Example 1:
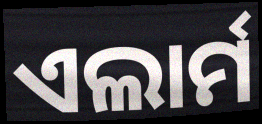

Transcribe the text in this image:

ଏଲାର୍ମ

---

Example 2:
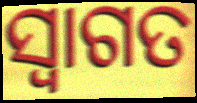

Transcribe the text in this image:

ସ୍ୱାଗତ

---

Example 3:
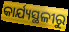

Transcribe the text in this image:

କାର୍ଯ୍ୟସ୍ଥଳୀରୁ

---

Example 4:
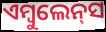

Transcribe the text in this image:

ଏମ୍ବୁଲେନ୍‌ସ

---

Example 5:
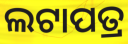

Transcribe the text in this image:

ଲଟାପତ୍ର